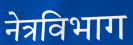
नेत्रविभाग